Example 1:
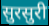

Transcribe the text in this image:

सुरसुरी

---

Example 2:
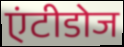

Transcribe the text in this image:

एंटीडोज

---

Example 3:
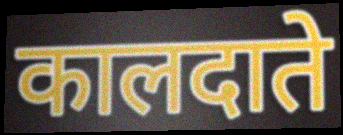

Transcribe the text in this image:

कालदाते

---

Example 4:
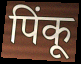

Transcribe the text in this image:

पिंकू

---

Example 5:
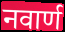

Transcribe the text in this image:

नवार्ण